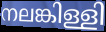
നലങ്കിള്ളി